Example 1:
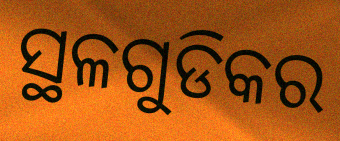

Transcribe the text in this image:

ସ୍ଥଳଗୁଡିକର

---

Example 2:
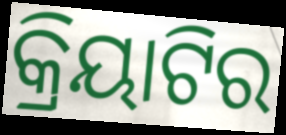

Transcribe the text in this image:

କ୍ରିୟାଟିର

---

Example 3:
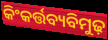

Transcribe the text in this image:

କିଂକର୍ତ୍ତବ୍ୟବିମୁଢ଼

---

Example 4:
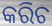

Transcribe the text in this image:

କରିଚ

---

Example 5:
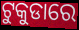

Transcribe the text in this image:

ଟୁକୁଡାରେ